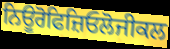
ਨਿਊਰੋਫਿਜ਼ਿਓਲੋਜੀਕਲ